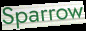
Sparrow